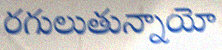
రగులుతున్నాయో